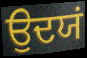
ਉਦਯਂ